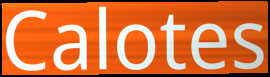
Calotes